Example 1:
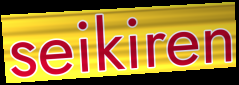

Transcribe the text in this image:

seikiren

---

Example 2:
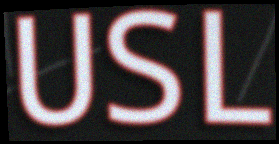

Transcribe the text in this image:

USL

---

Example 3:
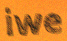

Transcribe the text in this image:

iwe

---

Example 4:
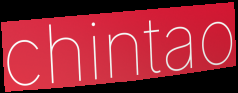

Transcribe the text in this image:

chintao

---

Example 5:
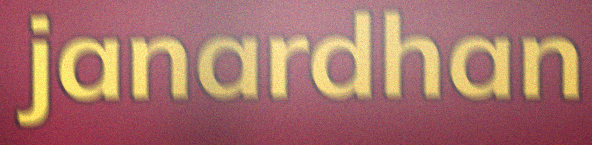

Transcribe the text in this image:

janardhan